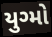
યુગ્મો